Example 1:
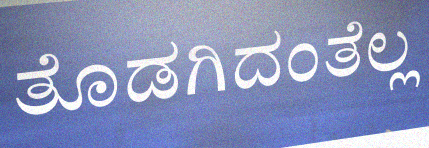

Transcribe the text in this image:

ತೊಡಗಿದಂತೆಲ್ಲ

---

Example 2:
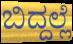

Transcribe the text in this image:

ಬಿದ್ದಲ್ಲೆ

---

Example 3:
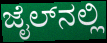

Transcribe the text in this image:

ಜೈಲ್‌ನಲ್ಲಿ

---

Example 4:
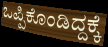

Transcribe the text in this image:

ಒಪ್ಪಿಕೊಂಡಿದ್ದಕ್ಕೆ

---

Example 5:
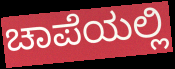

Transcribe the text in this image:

ಚಾಪೆಯಲ್ಲಿ